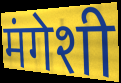
मंगेशी